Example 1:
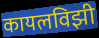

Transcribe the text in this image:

कायलविझी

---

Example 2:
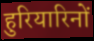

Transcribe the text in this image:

हुरियारिनों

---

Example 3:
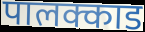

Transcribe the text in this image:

पालक्काड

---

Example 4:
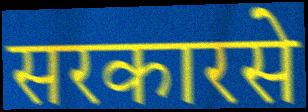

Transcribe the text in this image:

सरकारसे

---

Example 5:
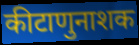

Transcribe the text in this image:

कीटाणुनाशक